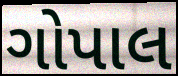
ગોપાલ